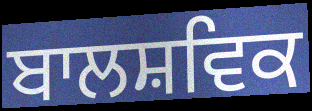
ਬਾਲਸ਼ਵਿਕ